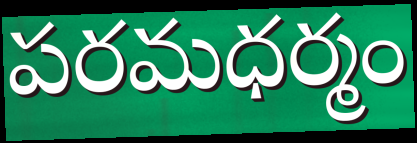
పరమధర్మం